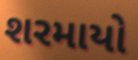
શરમાયો